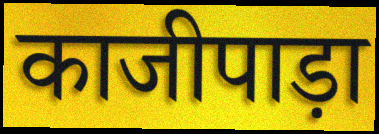
काजीपाड़ा